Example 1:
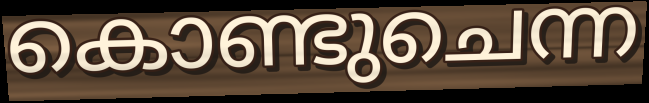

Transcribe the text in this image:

കൊണ്ടുചെന്ന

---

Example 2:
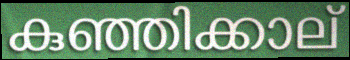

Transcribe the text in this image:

കുഞ്ഞിക്കാല്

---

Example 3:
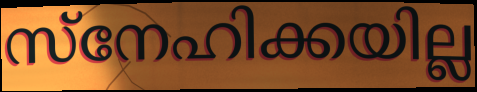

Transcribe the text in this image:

സ്നേഹിക്കയില്ല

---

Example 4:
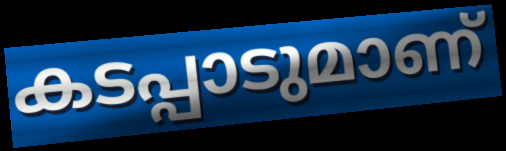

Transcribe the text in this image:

കടപ്പാടുമാണ്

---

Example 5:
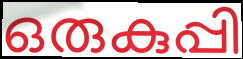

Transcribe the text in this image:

ഒരുകുപ്പി